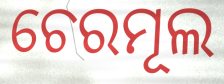
ଚେରମୂଲ